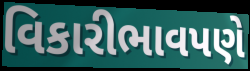
વિકારીભાવપણે